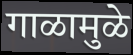
गाळामुळे